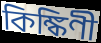
কিঙ্কিণী